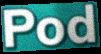
Pod